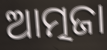
ଆତ୍ମଜା